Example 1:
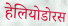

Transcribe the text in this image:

हेलियोडोरस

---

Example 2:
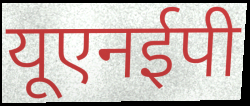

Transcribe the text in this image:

यूएनईपी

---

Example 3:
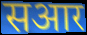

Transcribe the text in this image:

सआर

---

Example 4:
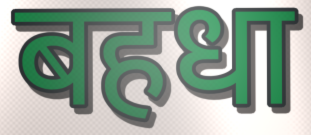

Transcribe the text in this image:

बहधा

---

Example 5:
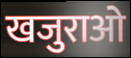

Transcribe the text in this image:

खजुराओ